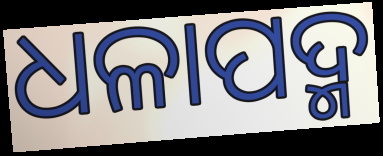
ଧଳାପଦ୍ମ